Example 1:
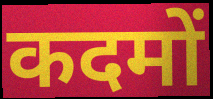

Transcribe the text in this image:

कदमों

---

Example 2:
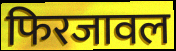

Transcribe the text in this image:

फिरजावल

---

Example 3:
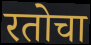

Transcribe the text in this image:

रतोचा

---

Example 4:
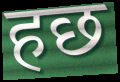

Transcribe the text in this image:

हछ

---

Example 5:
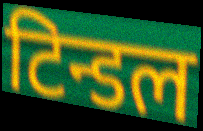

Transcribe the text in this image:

टिन्डल